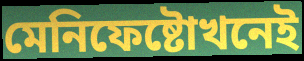
মেনিফেষ্টোখনেই